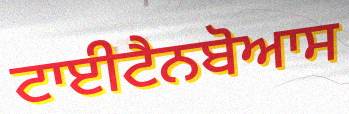
ਟਾਈਟੈਨਬੋਆਸ